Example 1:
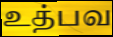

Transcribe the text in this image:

உத்பவ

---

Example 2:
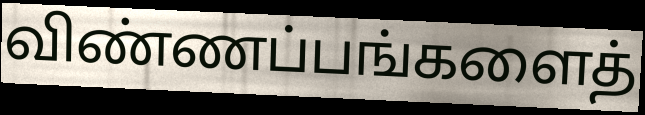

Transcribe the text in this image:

விண்ணப்பங்களைத்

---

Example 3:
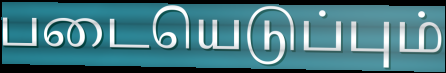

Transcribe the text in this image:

படையெடுப்பும்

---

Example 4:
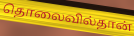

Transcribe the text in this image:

தொலைவில்தான்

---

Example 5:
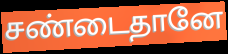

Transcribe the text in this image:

சண்டைதானே